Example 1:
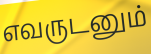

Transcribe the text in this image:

எவருடனும்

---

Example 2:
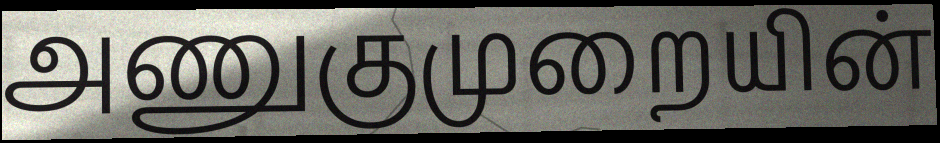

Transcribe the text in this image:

அணுகுமுறையின்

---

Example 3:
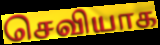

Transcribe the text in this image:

செவியாக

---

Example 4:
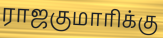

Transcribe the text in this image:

ராஜகுமாரிக்கு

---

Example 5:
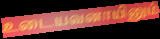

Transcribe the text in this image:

உடையவனாயினும்